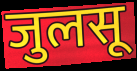
जुलसू